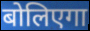
बोलिएगा